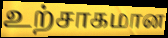
உற்சாகமான